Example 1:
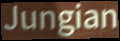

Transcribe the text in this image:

Jungian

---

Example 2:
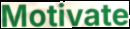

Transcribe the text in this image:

Motivate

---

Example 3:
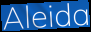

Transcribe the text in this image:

Aleida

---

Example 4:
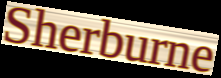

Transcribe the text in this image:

Sherburne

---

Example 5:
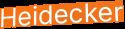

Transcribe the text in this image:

Heidecker